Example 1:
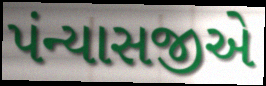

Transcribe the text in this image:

પંન્યાસજીએ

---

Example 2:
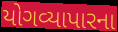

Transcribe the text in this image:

યોગવ્યાપારના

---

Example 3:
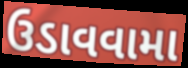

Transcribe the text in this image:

ઉડાવવામા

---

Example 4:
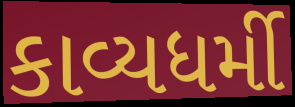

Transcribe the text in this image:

કાવ્યધર્મી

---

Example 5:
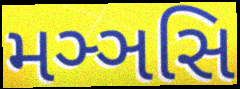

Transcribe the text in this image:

મઞ્ઞસિ